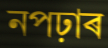
নপঢ়াৰ